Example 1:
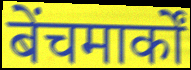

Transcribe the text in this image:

बेंचमार्कों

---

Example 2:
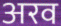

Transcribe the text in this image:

अरव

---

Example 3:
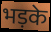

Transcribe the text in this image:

भड़के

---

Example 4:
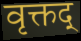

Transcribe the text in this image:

वृक्तद्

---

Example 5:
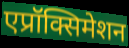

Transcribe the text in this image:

एप्रॉक्सिमेशन